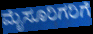
ಮೈಸೂರಿಗರಿಗೆ